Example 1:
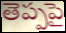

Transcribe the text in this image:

తెప్పపై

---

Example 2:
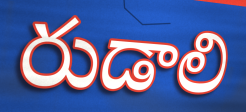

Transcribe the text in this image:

రుడాలి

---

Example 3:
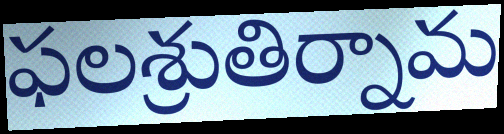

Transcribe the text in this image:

ఫలశ్రుతిర్నామ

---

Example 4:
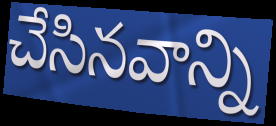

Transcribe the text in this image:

చేసినవాన్ని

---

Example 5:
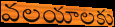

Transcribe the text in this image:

వలయాలకు